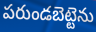
పరుండబెట్టెను